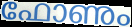
ഫോണും